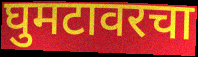
घुमटावरचा